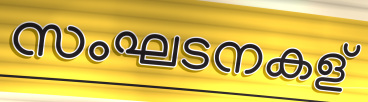
സംഘടനകള്